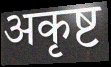
अकृष्ट